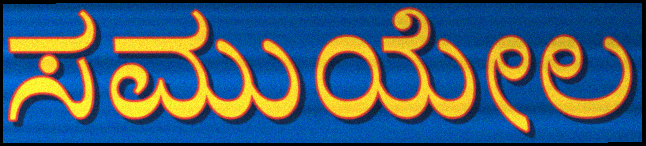
ಸಮುಯೇಲ